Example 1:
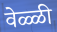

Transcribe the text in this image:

वेळ्ळी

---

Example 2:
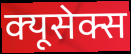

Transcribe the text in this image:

क्यूसेक्स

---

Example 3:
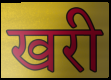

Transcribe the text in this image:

खरी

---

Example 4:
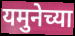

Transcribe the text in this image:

यमुनेच्या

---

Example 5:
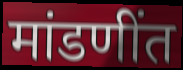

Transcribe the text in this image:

मांडणींत